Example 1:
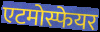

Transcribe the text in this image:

एटमोस्फेयर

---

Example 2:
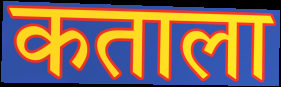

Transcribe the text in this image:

कताला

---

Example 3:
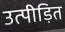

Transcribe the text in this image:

उत्पीड़ित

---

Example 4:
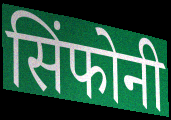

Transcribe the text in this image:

सिंफोनी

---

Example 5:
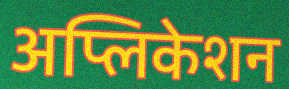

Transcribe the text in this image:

अप्लिकेशन